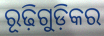
ରୂଢ଼ିଗୁଡ଼ିକର